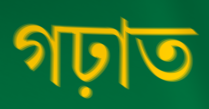
গঢ়াত